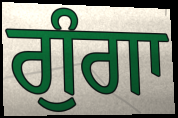
ਗੁੰਗਾ